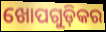
ଖୋପଗୁଡ଼ିକର